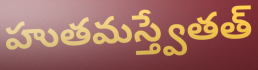
హుతమస్త్వేతత్